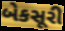
બેકસૂરી